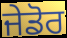
ਜੇਡੋਰ